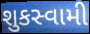
શુકસ્વામી